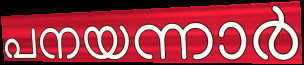
പനയന്നാർ